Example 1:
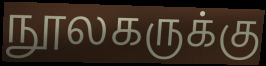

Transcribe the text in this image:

நூலகருக்கு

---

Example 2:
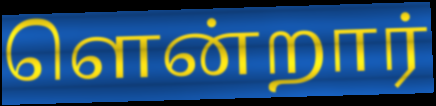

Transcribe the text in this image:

ளென்றார்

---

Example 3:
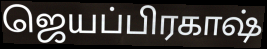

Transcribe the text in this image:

ஜெயப்பிரகாஷ்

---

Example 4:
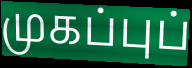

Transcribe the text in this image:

முகப்புப்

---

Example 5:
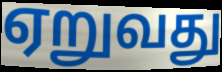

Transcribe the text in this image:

ஏறுவது